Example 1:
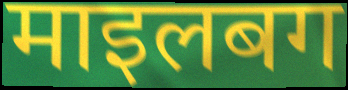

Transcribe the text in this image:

माइलबग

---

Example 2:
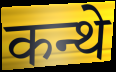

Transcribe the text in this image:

कन्थे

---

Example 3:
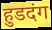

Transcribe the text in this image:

हुडदंग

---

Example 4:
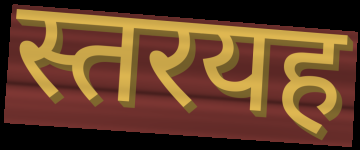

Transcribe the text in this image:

स्तरयह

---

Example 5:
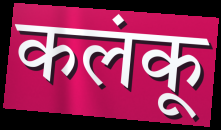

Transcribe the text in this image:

कलंकू